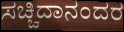
ಸಚ್ಚಿದಾನಂದರ